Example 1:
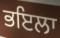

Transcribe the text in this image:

ਭਇਲਾ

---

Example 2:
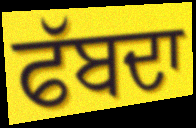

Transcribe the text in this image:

ਫੱਬਦਾ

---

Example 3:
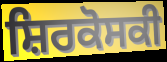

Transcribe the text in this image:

ਸ਼ਿਰਕੋਸਕੀ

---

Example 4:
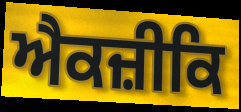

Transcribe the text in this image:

ਐਕਜ਼ੀਕਿ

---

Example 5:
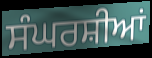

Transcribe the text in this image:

ਸੰਘਰਸ਼ੀਆਂ